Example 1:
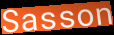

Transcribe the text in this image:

Sasson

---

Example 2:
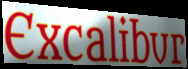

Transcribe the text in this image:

Excalibur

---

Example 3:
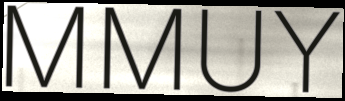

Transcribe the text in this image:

MMUY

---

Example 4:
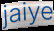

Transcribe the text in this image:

jaiye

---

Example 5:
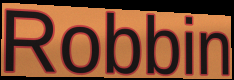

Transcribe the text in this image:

Robbin